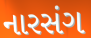
નારસંગ